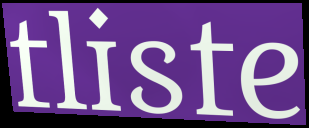
tliste